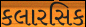
કલારસિક